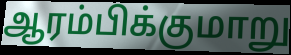
ஆரம்பிக்குமாறு